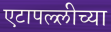
एटापल्लीच्या